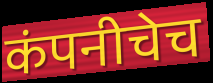
कंपनीचेच